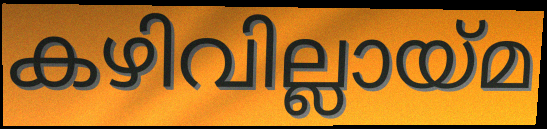
കഴിവില്ലായ്മ